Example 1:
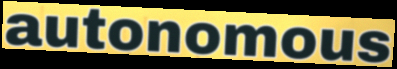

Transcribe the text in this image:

autonomous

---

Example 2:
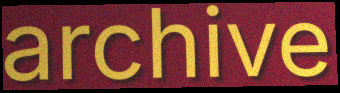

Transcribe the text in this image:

archive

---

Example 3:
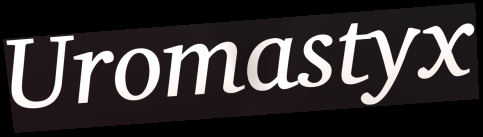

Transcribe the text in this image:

Uromastyx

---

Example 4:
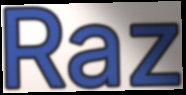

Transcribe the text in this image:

Raz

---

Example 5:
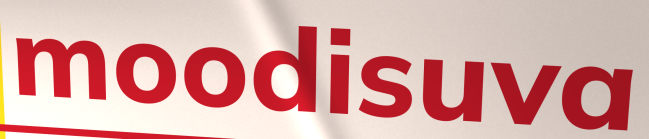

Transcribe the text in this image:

moodisuva